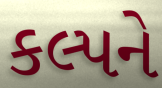
કલ્પને